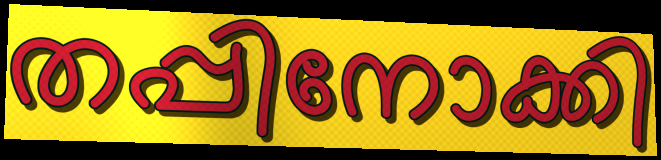
തപ്പിനോക്കി